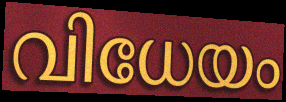
വിധേയം